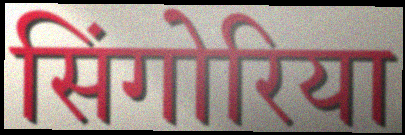
सिंगोरिया